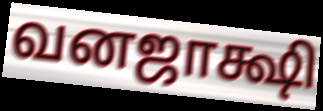
வனஜாக்ஷி